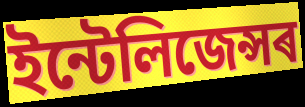
ইন্টেলিজেন্সৰ